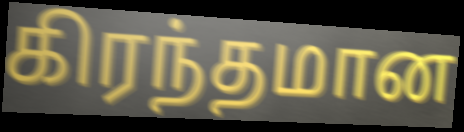
கிரந்தமான